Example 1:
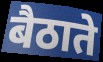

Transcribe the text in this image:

बैठाते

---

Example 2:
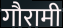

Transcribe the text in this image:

गौरामी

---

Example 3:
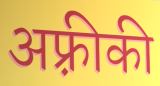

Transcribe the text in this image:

अफ़्रीकी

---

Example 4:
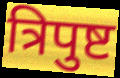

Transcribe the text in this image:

त्रिपुष्ट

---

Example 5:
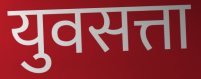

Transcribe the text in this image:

युवसत्ता